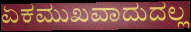
ಏಕಮುಖವಾದುದಲ್ಲ